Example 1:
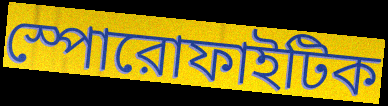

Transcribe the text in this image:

স্পোরোফাইটিক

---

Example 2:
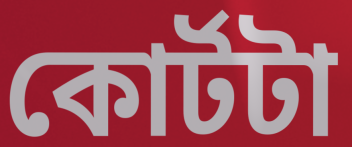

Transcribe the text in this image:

কোর্টটা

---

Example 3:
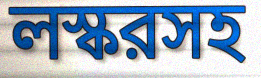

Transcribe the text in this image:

লস্করসহ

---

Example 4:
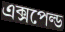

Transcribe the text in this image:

এক্সপেল্ড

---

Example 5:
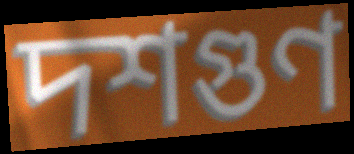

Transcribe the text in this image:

দশগুণ